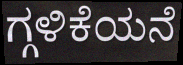
ಗ್ಗಳಿಕೆಯನೆ